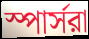
স্পার্সরা